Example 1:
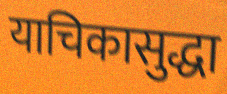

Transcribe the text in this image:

याचिकासुद्धा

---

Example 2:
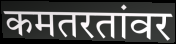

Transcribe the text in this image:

कमतरतांवर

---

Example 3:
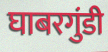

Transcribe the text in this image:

घाबरगुंडी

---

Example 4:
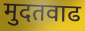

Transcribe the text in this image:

मुदतवाढ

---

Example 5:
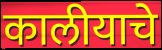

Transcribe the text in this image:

कालीयाचे